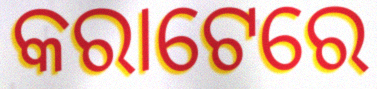
କରାଟେରେ